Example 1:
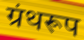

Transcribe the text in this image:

ग्रंथरूप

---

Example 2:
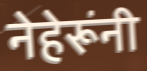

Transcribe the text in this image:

नेहेरूंनी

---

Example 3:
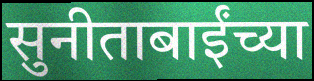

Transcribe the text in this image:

सुनीताबाईंच्या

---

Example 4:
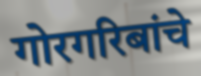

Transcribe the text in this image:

गोरगरिबांचे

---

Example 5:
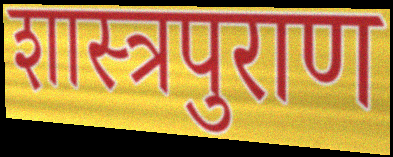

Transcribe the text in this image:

शास्त्रपुराण